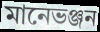
মানেভঞ্জন